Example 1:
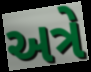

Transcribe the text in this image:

અત્રે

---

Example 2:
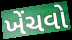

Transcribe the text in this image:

ખેંચવો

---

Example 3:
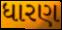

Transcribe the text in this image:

ધારણ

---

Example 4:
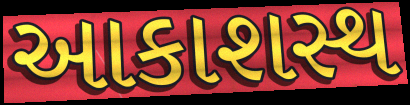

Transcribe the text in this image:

આકાશસ્થ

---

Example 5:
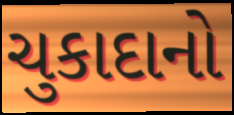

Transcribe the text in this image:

ચુકાદાનો